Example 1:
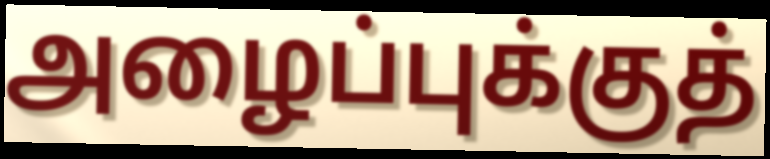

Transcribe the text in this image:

அழைப்புக்குத்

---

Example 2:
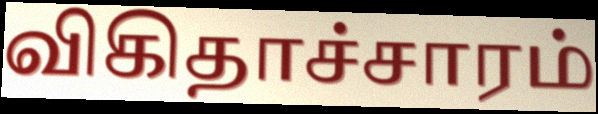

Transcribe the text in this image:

விகிதாச்சாரம்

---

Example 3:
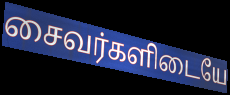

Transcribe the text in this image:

சைவர்களிடையே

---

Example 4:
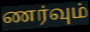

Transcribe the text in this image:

ணர்வும்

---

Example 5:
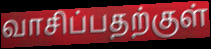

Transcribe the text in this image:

வாசிப்பதற்குள்